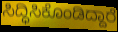
ಸಿದ್ಧಿಸಿಕೊಂಡಿದ್ದಾರೆ